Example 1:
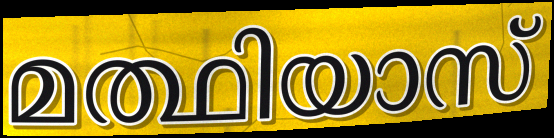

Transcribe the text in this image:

മത്ഥിയാസ്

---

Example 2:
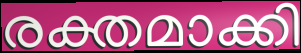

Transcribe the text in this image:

രക്തമാക്കി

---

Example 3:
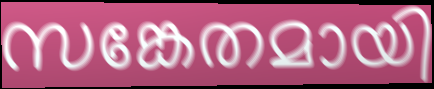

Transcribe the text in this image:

സങ്കേതമായി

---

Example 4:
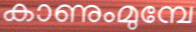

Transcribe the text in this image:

കാണുംമുമ്പേ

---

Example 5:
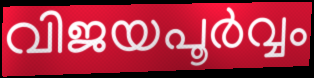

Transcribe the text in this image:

വിജയപൂർവ്വം